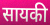
सायकी